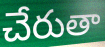
చేరుతా